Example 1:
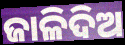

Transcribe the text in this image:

ଜାଳିଦିଅ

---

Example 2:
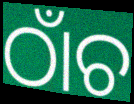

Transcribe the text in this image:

ଠାଁଚ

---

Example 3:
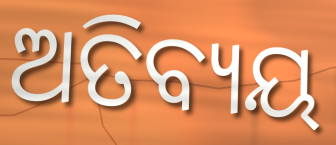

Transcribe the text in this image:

ଅତିବ୍ୟୟ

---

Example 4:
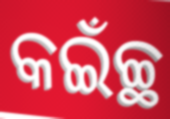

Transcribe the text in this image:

କଇଁଚ୍ଛ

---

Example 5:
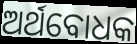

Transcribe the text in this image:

ଅର୍ଥବୋଧକ